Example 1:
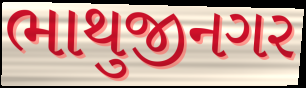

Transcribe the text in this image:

ભાથુજીનગર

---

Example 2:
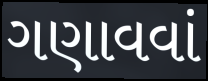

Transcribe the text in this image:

ગણાવવાં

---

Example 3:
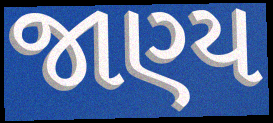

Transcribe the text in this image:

જાણ્ય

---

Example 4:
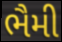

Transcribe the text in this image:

ભૈમી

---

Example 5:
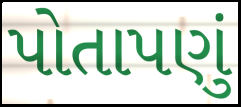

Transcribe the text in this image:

પોતાપણું